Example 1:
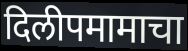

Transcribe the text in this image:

दिलीपमामाचा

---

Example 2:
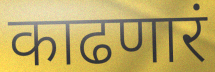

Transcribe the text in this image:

काढणारं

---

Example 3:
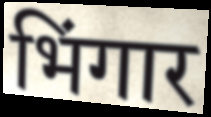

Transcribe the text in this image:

भिंगार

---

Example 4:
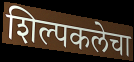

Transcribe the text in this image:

शिल्पकलेचा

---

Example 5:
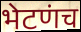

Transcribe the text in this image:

भेटणंच